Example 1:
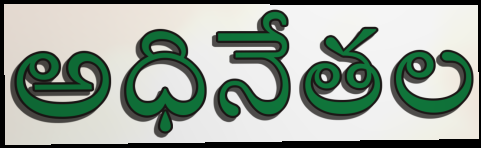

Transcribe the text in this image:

అధినేతల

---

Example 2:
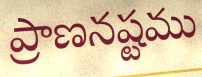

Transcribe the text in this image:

ప్రాణనష్టము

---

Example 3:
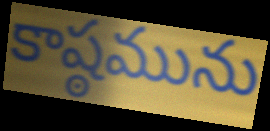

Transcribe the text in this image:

కాష్ఠమును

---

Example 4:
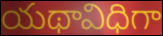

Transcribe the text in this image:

యథావిధిగా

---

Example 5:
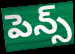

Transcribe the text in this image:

పెన్స్